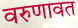
वरुणावत